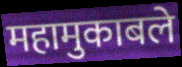
महामुकाबले